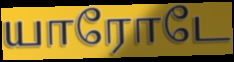
யாரோடே